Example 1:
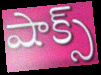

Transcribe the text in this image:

షాక్స్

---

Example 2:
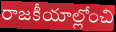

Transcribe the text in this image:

రాజకీయాల్లోంచి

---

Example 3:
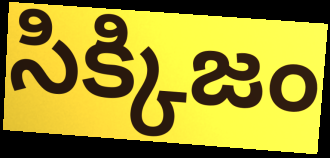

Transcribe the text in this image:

సిక్కిజం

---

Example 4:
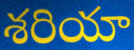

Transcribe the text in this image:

శరియా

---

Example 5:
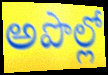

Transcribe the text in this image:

అపొల్లో